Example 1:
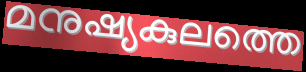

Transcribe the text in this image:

മനുഷ്യകുലത്തെ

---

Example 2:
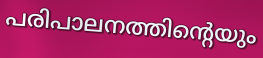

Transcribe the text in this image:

പരിപാലനത്തിന്റെയും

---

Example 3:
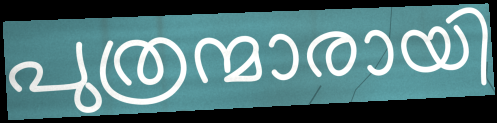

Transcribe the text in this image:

പുത്രന്മാരായി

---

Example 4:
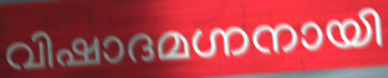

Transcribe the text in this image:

വിഷാദമഗ്നനായി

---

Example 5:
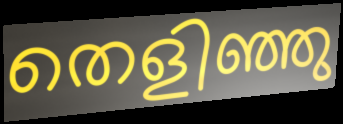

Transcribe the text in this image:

തെളിഞ്ഞു